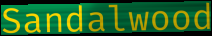
Sandalwood